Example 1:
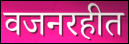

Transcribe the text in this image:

वजनरहीत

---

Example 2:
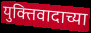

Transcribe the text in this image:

युक्तिवादाच्या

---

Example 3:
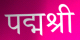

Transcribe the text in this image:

पद्मश्री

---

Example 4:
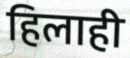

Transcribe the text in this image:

हिलाही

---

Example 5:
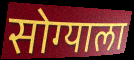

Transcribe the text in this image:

सोग्याला